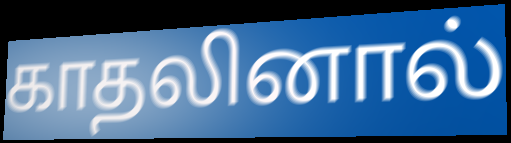
காதலினால்